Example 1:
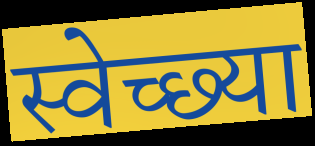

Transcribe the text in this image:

स्वेच्छ्या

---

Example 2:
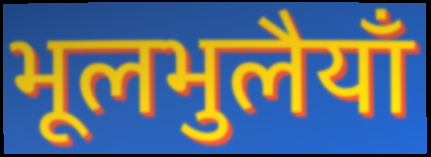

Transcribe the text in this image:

भूलभुलैयाँ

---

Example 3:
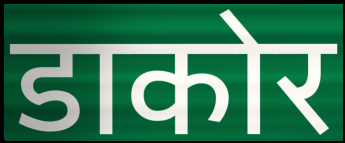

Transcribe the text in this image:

डाकोर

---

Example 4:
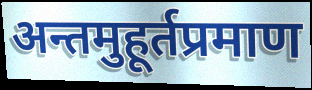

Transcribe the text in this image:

अन्तमुहूर्तप्रमाण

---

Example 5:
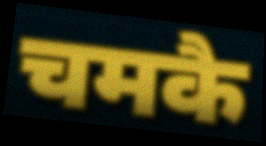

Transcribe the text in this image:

चमकै